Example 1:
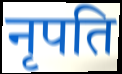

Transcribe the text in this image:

नृपति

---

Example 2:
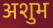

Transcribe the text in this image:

अशुभ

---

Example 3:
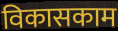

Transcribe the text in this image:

विकासकाम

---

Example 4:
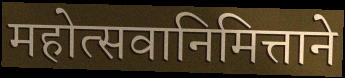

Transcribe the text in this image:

महोत्सवानिमित्ताने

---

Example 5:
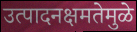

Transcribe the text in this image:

उत्पादनक्षमतेमुळे